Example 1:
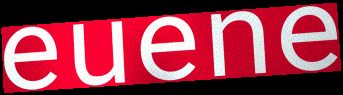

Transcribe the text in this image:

euene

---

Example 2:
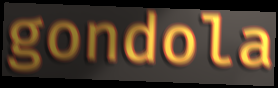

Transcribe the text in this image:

gondola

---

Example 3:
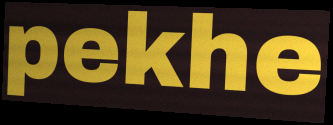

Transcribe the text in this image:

pekhe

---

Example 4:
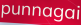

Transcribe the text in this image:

punnagai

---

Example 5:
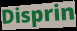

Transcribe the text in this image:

Disprin